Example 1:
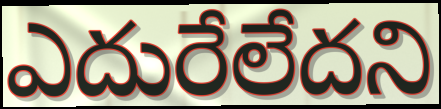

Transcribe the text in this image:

ఎదురేలేదని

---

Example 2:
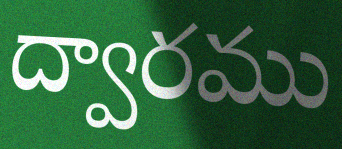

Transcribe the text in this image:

ద్వారము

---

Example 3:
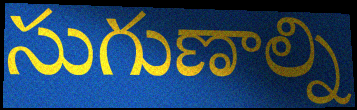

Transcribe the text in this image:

సుగుణాల్ని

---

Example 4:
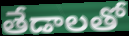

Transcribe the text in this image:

తేడాలతో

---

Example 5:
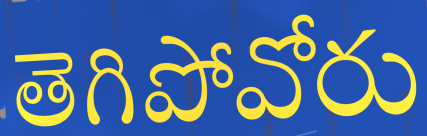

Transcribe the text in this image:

తెగిపోవోరు